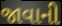
જાવાની